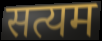
सत्यम